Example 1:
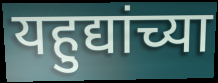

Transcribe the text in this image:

यहुद्यांच्या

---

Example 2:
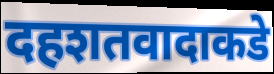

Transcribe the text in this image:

दहशतवादाकडे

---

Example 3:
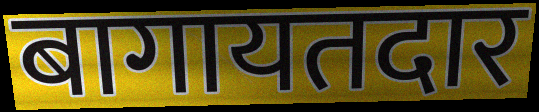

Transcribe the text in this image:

बागायतदार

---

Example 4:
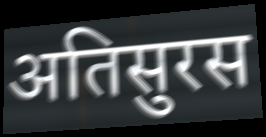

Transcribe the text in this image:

अतिसुरस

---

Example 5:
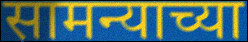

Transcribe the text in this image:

सामन्याच्या